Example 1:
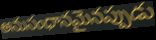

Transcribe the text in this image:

అనుసంధానమైనప్పుడు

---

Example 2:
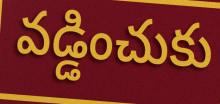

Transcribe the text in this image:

వడ్డించుకు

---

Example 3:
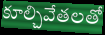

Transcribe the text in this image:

కూల్చివేతలతో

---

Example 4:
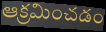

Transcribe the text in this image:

ఆక్రమించడం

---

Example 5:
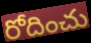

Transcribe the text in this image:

రోదించు